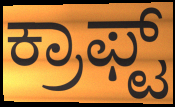
ಕ್ರಾಫ್ಟ್